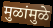
मुळांमुळे